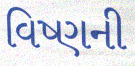
વિષ્ણની